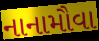
નાનામૌવા